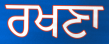
ਰਖਣਾ